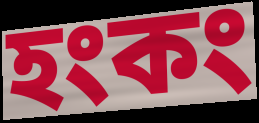
হংকং